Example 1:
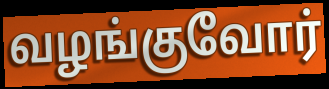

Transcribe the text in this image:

வழங்குவோர்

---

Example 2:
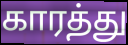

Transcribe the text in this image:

காரத்து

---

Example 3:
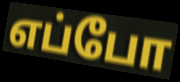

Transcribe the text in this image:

எப்போ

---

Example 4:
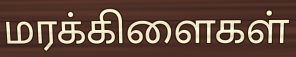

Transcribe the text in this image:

மரக்கிளைகள்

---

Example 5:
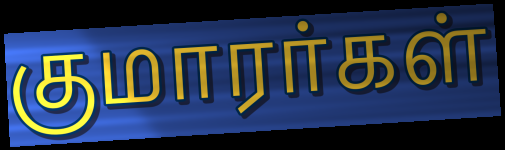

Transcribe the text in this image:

குமாரர்கள்